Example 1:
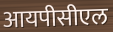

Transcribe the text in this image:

आयपीसीएल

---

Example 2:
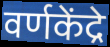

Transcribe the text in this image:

वर्णकेंद्रे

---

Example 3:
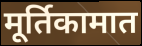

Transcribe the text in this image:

मूर्तिकामात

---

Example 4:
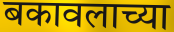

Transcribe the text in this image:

बकावलाच्या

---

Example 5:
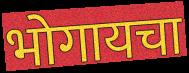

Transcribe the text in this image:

भोगायचा